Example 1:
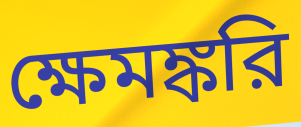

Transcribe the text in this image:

ক্ষেমঙ্করি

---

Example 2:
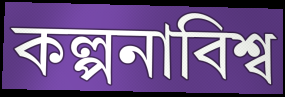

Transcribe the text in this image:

কল্পনাবিশ্ব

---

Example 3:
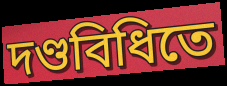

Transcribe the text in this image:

দণ্ডবিধিতে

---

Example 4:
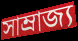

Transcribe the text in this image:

সাম্রাজ্য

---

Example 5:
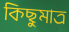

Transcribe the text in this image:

কিছুমাত্র